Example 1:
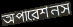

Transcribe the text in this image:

অপারেশনস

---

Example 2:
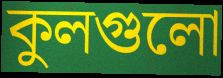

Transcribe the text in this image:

কুলগুলো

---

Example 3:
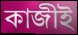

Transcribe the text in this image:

কাজীই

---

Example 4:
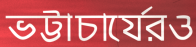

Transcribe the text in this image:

ভট্টাচার্যেরও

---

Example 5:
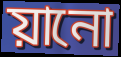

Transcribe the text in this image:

য়ানো